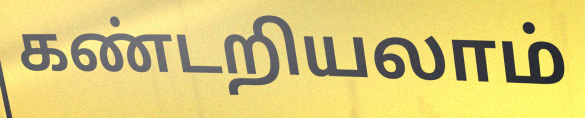
கண்டறியலாம்